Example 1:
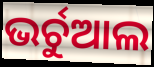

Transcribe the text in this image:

ଭର୍ଚୁଆଲ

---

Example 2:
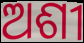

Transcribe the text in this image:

ଅଶୀ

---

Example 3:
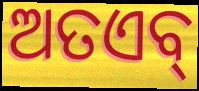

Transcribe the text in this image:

ଅତଏବ୍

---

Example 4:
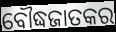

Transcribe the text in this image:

ବୌଦ୍ଧଜାତକର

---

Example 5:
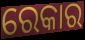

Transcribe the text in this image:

ରେକାର